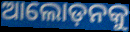
ଆଲୋଡ଼ନକୁ